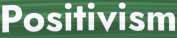
Positivism